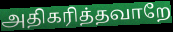
அதிகரித்தவாறே